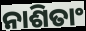
ନାଶିତାଂ